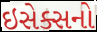
ઇસેક્સનો